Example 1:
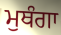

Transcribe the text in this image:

ਮੁਥੰਗਾ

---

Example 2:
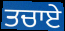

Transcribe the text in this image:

ਤਚਾਏ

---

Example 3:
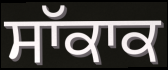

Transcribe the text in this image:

ਸਾੱਕਾਕ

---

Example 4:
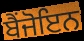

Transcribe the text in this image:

ਬੈਂਜੋਇਨ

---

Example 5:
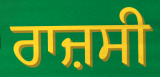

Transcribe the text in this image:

ਰਾਜ਼ਸੀ